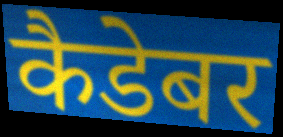
कैडेबर